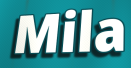
Mila